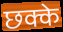
छक्के